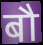
बौ